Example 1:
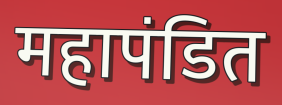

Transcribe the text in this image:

महापंडित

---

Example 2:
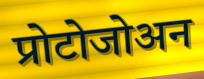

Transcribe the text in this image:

प्रोटोजोअन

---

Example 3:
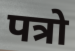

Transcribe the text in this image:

पत्रो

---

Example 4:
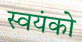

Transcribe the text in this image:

स्वयंको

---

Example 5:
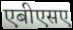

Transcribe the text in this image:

एबीएसए